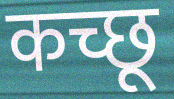
कच्छू